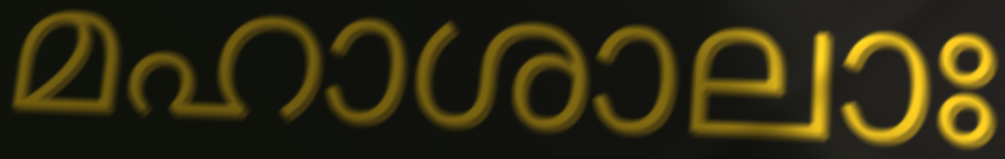
മഹാശാലാഃ